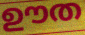
ഊത